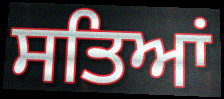
ਸਤਿਆਂ